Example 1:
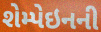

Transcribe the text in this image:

શેમ્પેઇનની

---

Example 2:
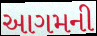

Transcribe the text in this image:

આગમની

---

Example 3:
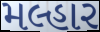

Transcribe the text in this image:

મલ્હાર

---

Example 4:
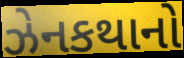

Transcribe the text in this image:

ઝેનકથાનો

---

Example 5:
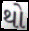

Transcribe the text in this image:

થો